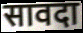
सावदा